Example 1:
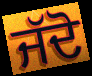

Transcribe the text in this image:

ਜੱਦੋ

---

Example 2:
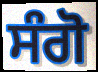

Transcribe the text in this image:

ਸੰਗੋ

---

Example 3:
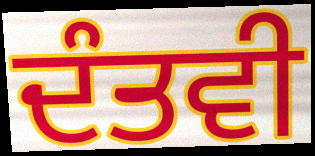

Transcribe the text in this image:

ਦੰਤਵੀ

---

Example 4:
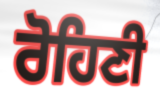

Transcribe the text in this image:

ਰੋਹਿਣੀ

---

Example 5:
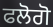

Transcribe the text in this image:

ਫਲੋਗੋ